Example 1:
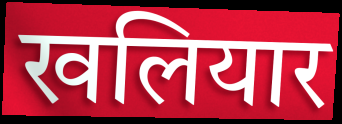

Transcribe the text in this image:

खलियार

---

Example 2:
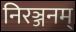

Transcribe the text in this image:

निरञ्जनम्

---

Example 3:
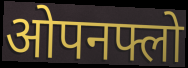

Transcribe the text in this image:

ओपनफ्लो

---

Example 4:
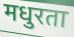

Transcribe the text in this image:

मधुरता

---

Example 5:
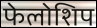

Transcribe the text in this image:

फेलोशिप